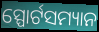
ସ୍ପୋର୍ଟସମ୍ୟାନ